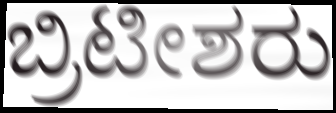
ಬ್ರಿಟೀಶರು